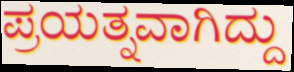
ಪ್ರಯತ್ನವಾಗಿದ್ದು